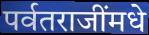
पर्वतराजींमधे